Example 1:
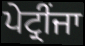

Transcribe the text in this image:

ਪੇਟ੍ਰੀਂਜਾ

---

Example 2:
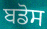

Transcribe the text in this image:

ਬਡੋਸ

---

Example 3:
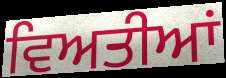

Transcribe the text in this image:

ਵਿਅਤੀਆਂ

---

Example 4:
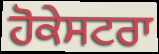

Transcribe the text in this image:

ਹੋਕੇਸਟਰਾ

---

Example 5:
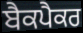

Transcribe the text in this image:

ਬੈਕਪੈਕਰ